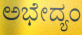
ಅಭೇದ್ಯಂ